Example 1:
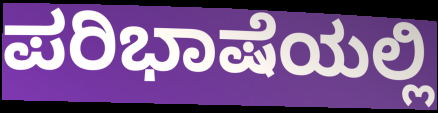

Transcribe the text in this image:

ಪರಿಭಾಷೆಯಲ್ಲಿ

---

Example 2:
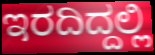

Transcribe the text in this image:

ಇರದಿದ್ದಲ್ಲಿ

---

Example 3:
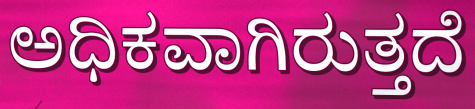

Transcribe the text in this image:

ಅಧಿಕವಾಗಿರುತ್ತದೆ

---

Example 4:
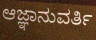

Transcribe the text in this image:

ಆಜ್ಞಾನುವರ್ತಿ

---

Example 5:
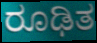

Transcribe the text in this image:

ರೂಢಿತ